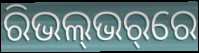
ରିଭଲ୍‌ଭର୍‌ରେ